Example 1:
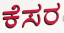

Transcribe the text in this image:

ಕೆಸರ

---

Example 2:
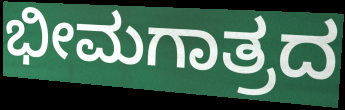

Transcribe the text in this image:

ಭೀಮಗಾತ್ರದ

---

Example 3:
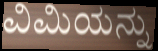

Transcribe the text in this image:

ವಿಮಿಯನ್ನು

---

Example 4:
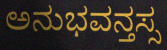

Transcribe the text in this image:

ಅನುಭವನ್ತಸ್ಸ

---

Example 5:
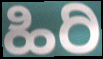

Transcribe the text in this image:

ಹಿರಿ